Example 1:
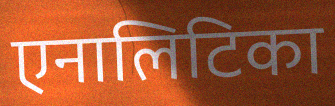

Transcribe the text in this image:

एनालिटिका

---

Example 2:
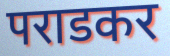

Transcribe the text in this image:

पराडकर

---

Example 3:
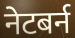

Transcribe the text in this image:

नेटबर्न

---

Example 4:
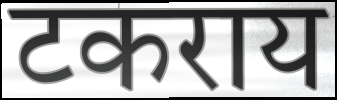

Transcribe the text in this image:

टकराय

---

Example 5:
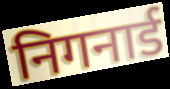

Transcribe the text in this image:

निगनार्ड